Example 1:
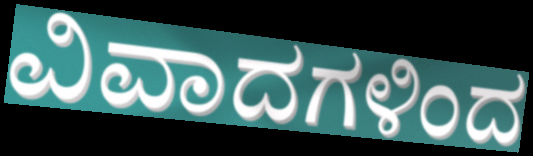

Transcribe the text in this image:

ವಿವಾದಗಳಿಂದ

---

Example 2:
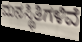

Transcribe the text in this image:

ಮನಸ್ಥಿತಿಗಳಿವೆ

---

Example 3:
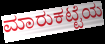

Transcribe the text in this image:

ಮಾರುಕಟ್ಟೆಯ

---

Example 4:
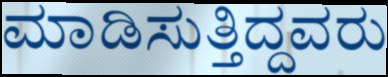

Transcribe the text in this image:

ಮಾಡಿಸುತ್ತಿದ್ದವರು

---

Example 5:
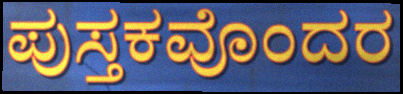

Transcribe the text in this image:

ಪುಸ್ತಕವೊಂದರ